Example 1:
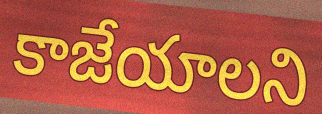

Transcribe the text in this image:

కాజేయాలని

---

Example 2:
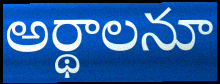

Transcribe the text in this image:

అర్థాలనూ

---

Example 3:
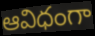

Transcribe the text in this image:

ఆవిధంగా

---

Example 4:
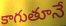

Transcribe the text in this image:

కాగుతూనే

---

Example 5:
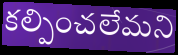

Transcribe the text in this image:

కల్పించలేమని